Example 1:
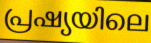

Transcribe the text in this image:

പ്രഷ്യയിലെ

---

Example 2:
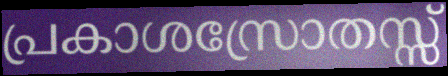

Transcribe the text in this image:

പ്രകാശസ്രോതസ്സ്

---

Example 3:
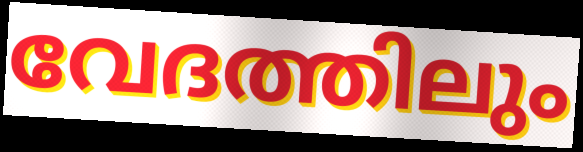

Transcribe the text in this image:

വേദത്തിലും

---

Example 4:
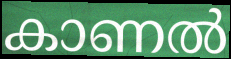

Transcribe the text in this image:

കാണൽ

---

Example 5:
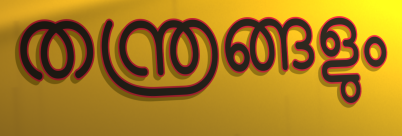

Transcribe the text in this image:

തന്ത്രങ്ങളും